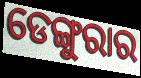
ଡେଙ୍ଗୁରାର